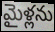
మైళ్లను